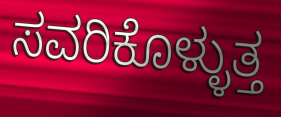
ಸವರಿಕೊಳ್ಳುತ್ತ